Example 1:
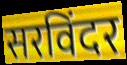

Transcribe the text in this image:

सरविंदर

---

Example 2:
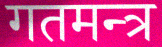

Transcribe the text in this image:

गतमन्त्र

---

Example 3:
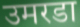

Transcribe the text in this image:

उमरडा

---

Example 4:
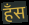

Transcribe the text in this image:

हँस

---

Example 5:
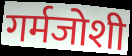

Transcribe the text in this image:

गर्मजोशी